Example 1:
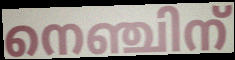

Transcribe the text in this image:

നെഞ്ചിന്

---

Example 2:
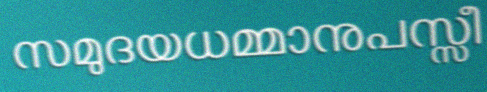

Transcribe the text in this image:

സമുദയധമ്മാനുപസ്സീ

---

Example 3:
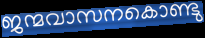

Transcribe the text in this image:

ജന്മവാസനകൊണ്ടു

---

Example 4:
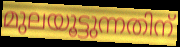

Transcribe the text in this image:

മുലയൂട്ടുന്നതിന്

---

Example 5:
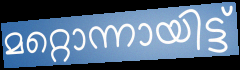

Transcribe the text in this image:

മറ്റൊന്നായിട്ട്